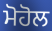
ਮੋਹੋਲ